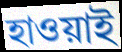
হাওয়াই